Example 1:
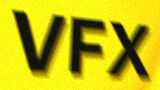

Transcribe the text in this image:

VFX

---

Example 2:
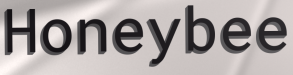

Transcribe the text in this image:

Honeybee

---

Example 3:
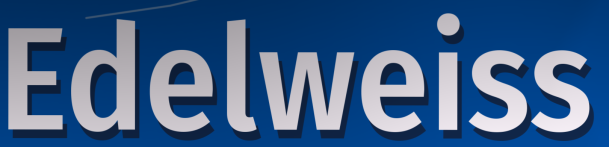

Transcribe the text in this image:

Edelweiss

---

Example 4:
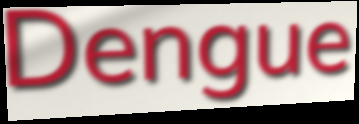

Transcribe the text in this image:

Dengue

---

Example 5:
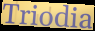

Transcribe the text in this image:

Triodia